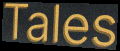
Tales